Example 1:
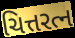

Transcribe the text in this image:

ચિત્તરત્ન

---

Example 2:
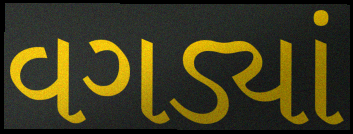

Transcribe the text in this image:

વગડ્યાં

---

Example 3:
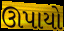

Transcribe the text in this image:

ઊપાયો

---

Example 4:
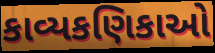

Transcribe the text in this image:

કાવ્યકણિકાઓ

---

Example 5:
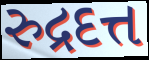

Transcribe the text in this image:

રુદ્રદત્ત